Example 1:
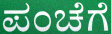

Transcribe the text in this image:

ಪಂಚೆಗೆ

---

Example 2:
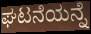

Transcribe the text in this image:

ಘಟನೆಯನ್ನೆ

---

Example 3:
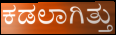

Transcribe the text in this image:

ಕಡಲಾಗಿತ್ತು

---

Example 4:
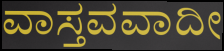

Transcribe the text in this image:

ವಾಸ್ತವವಾದೀ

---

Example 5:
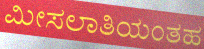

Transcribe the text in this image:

ಮೀಸಲಾತಿಯಂತಹ